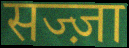
सज्ज़ा